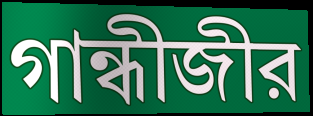
গান্ধীজীর